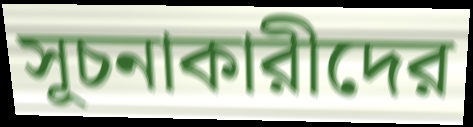
সূচনাকারীদের